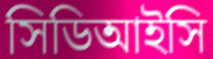
সিডিআইসি